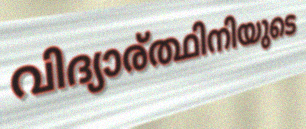
വിദ്യാര്ത്ഥിനിയുടെ